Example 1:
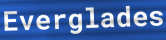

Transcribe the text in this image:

Everglades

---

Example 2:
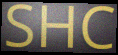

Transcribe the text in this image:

SHC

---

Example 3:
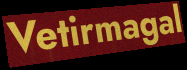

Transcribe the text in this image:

Vetirmagal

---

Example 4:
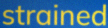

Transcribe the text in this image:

strained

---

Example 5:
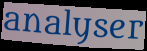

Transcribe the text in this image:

analyser